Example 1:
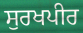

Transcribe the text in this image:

ਸੁਰਖਪੀਰ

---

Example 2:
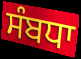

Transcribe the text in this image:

ਸੰਬਧਾ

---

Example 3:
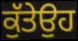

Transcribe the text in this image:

ਕੁੱਤੇਉਹ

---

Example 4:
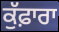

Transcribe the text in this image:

ਕੁੱਫ਼ਾਰਾ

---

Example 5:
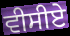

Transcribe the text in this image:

ਵੀਸੀਏ